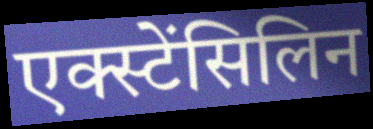
एक्स्टेंसिलिन